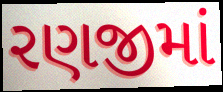
રણજીમાં